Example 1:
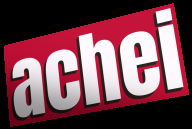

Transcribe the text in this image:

achei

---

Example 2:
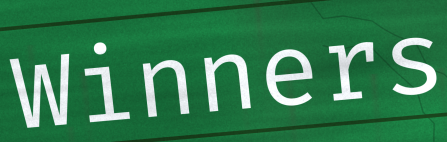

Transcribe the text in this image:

Winners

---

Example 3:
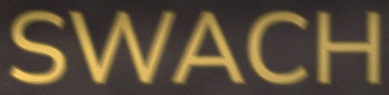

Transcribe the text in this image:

SWACH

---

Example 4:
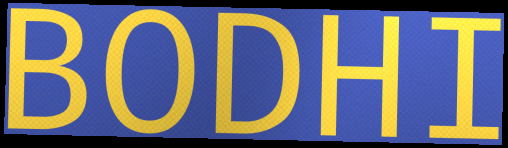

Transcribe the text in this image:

BODHI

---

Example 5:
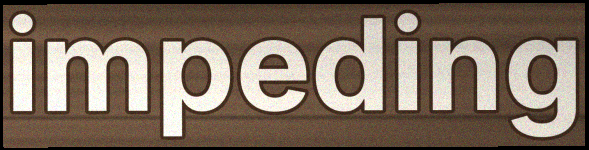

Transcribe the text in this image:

impeding